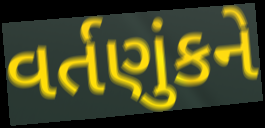
વર્તણુંકને